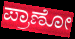
ಪ್ರಾಣೋ